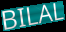
BILAL